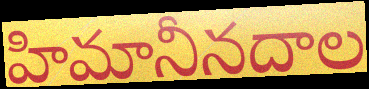
హిమానీనదాల